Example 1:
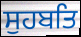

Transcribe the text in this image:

ਸੁਹਬਤਿ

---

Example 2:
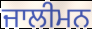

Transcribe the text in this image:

ਜਾਲੀਮਨ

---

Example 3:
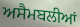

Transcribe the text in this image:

ਅਸੈਮਬਲੀਆਂ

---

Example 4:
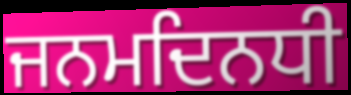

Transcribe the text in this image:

ਜਨਮਦਿਨਧੀ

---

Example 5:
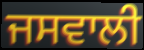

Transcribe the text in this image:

ਜਸਵਾਲੀ